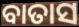
ବାତାସ